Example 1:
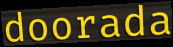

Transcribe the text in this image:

doorada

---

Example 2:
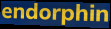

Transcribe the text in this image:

endorphin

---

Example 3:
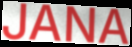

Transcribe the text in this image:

JANA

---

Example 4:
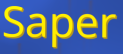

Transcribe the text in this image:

Saper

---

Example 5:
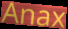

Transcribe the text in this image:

Anax